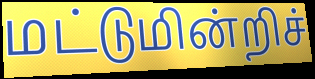
மட்டுமின்றிச்